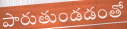
పారుతుండడంతో